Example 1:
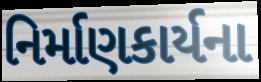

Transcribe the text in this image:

નિર્માણકાર્યના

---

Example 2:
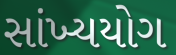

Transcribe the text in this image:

સાંખ્યયોગ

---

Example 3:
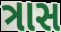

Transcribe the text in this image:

ત્રાસ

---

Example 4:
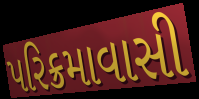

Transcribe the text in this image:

પરિક્રમાવાસી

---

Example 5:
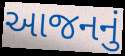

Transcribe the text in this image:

આજનનું